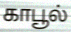
காபூல்